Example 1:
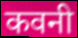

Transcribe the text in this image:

कवनी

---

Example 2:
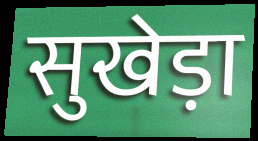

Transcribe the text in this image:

सुखेड़ा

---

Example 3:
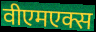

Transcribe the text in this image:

वीएमएक्स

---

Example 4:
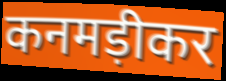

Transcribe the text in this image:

कनमड़ीकर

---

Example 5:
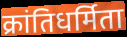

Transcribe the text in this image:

क्रांतिधर्मिता